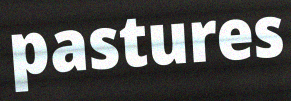
pastures